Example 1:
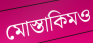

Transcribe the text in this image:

মোস্তাকিমও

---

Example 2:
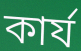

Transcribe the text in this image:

কার্য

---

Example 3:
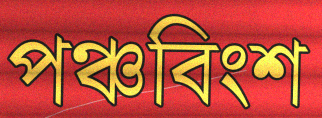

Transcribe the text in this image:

পঞ্চবিংশ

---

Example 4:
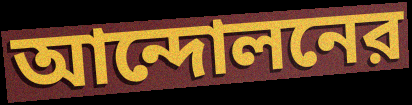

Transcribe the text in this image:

আন্দোলনের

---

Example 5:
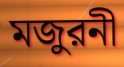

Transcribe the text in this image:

মজুরনী